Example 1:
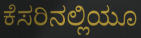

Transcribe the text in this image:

ಕೆಸರಿನಲ್ಲಿಯೂ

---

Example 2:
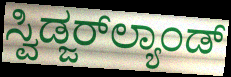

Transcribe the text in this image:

ಸ್ವಿಡ್ಜರ್‌ಲ್ಯಾಂಡ್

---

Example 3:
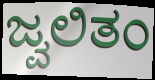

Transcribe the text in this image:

ಜ್ವಲಿತಂ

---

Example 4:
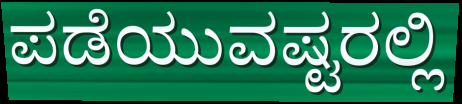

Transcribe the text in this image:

ಪಡೆಯುವಷ್ಟರಲ್ಲಿ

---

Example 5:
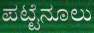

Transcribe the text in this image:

ಪಟ್ಟೆನೂಲು